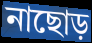
নাছোড়